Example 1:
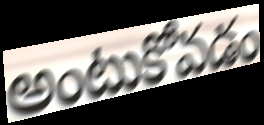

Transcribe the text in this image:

అంటుకోవడం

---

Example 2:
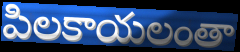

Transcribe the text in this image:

పిలకాయలంతా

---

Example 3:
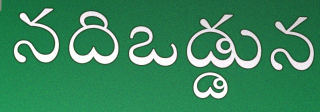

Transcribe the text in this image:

నదిఒడ్డున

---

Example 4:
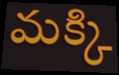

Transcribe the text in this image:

మక్కి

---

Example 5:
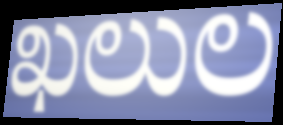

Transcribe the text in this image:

ఖలుల